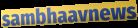
sambhaavnews